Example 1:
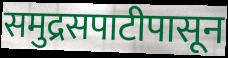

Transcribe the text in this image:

समुद्रसपाटीपासून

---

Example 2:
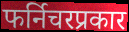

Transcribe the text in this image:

फर्निचरप्रकार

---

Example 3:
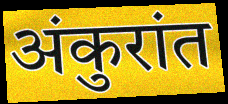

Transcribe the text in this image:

अंकुरांत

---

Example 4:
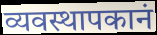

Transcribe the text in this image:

व्यवस्थापकानं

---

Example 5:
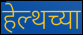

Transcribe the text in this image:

हेल्थच्या